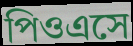
পিওএসে